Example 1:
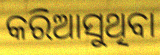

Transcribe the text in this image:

କରିଆସୁଥିବା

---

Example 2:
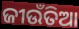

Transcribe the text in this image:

ଜୀଉଁତିଆ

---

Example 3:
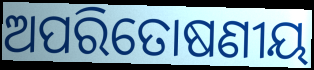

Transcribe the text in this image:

ଅପରିତୋଷଣୀୟ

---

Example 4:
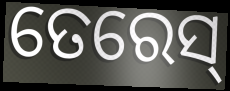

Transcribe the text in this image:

ତେରେସ୍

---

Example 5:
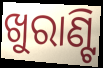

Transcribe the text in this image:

ଖୁରାଣ୍ଟି